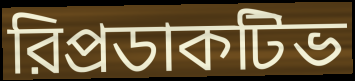
রিপ্রডাকটিভ